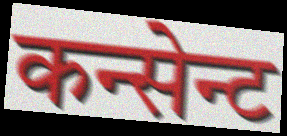
कन्सेन्ट